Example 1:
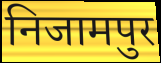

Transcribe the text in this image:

निजामपुर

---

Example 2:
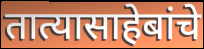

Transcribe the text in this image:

तात्यासाहेबांचे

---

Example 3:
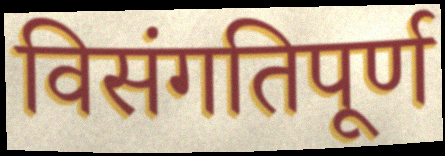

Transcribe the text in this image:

विसंगतिपूर्ण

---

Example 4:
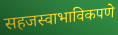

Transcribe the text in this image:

सहजस्वाभाविकपणे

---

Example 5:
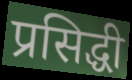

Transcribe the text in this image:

प्रसिद्धी